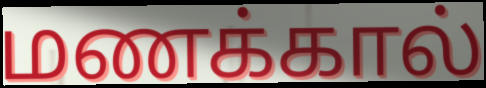
மணக்கால்